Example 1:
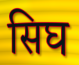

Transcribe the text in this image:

सिघ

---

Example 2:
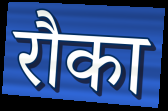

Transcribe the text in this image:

रौका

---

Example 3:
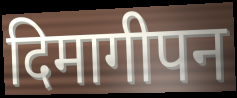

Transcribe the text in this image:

दिमागीपन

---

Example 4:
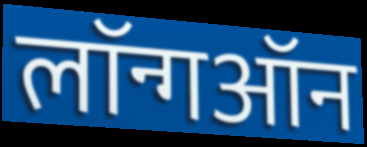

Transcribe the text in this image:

लॉन्गऑन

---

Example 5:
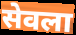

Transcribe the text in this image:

सेवला